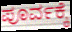
ಪೂರ್ವಕ್ಕೆ